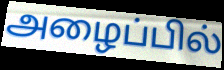
அழைப்பில்